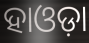
ହାଓଡ଼ା